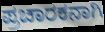
ಪ್ರಚಾರಕನಾಗಿ